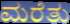
ಮರೆತು